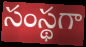
సంస్థగా